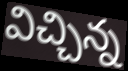
విచ్చిన్న